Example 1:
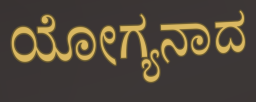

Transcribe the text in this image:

ಯೋಗ್ಯನಾದ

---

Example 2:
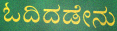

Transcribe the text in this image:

ಓದಿದಡೇನು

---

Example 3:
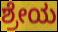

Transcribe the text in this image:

ಶ್ರೇಯ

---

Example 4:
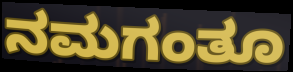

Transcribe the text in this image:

ನಮಗಂತೂ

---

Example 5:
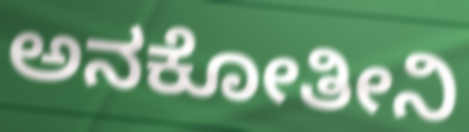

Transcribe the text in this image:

ಅನಕೋತೀನಿ